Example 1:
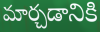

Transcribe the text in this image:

మార్చడానికి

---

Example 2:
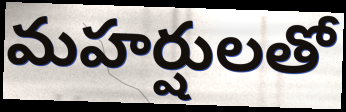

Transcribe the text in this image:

మహర్షులతో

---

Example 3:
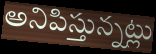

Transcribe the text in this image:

అనిపిస్తున్నట్లు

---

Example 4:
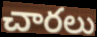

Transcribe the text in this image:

చారలు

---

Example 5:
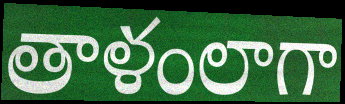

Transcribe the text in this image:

తాళంలాగా